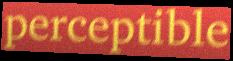
perceptible